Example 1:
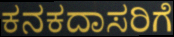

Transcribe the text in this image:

ಕನಕದಾಸರಿಗೆ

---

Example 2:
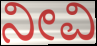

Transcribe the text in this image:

ನೀವಿ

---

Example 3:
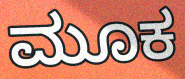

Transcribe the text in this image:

ಮೂಕ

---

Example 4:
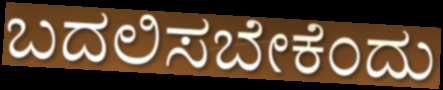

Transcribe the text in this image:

ಬದಲಿಸಬೇಕೆಂದು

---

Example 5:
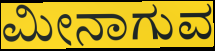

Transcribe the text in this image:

ಮೀನಾಗುವ